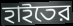
হাইতের